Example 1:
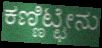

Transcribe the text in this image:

ಕಣ್ಣಿಟ್ಟೇನು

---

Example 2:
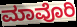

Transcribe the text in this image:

ಮಾವೊರಿ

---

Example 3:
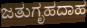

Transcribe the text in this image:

ಜತುಗೃಹದಾಹ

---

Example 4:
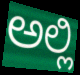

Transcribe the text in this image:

ಅಲ್ಲಿ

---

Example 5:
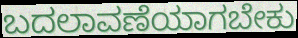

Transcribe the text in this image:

ಬದಲಾವಣೆಯಾಗಬೇಕು